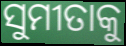
ସୁମୀତାକୁ